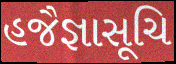
હજૈજ્ઞાસૂચિ